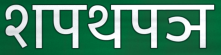
शपथपञ